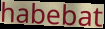
habebat